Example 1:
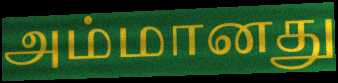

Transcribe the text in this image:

அம்மானது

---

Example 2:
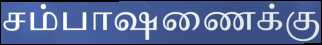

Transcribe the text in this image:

சம்பாஷணைக்கு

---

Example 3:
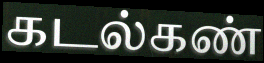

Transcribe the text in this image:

கடல்கண்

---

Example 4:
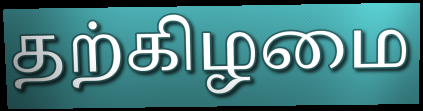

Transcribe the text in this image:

தற்கிழமை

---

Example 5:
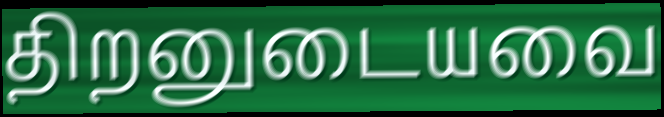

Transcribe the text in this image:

திறனுடையவை